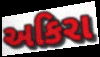
અકિરા